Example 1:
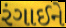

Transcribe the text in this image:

રંગાઈને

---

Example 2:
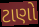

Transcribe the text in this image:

ટાણો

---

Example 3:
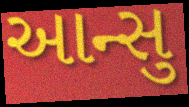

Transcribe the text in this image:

આન્સુ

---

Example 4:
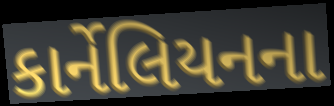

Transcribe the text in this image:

કાર્નેલિયનના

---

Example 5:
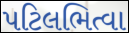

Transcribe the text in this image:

પટિલભિત્વા